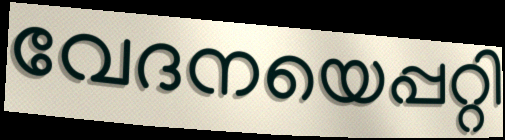
വേദനയെപ്പറ്റി